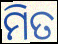
ମିତ